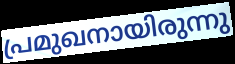
പ്രമുഖനായിരുന്നു